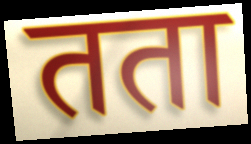
तता